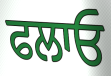
ਫਲਾਓ